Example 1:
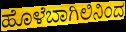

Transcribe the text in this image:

ಹೊಳೆಬಾಗಿಲಿನಿಂದ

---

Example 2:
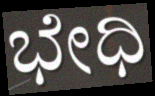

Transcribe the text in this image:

ಭೇಧಿ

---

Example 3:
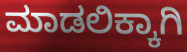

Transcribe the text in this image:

ಮಾಡಲಿಕ್ಕಾಗಿ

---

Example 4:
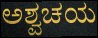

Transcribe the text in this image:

ಅಶ್ವಚಯ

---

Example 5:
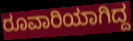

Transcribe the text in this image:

ರೂವಾರಿಯಾಗಿದ್ದ